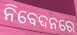
ନିବେଦନରେ